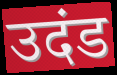
उदंड